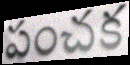
పంచక